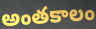
అంతకాలం